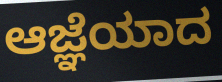
ಆಜ್ಞೆಯಾದ